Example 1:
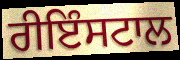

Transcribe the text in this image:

ਰੀਇੰਸਟਾਲ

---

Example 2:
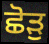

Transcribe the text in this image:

ਛੋੜੁ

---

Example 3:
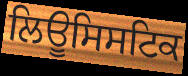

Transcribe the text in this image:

ਲਿਊਸਿਸਟਿਕ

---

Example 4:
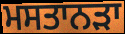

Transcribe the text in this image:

ਮਸਤਾਨੜਾ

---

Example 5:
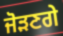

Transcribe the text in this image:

ਜੋੜਣਗੇ